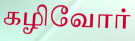
கழிவோர்